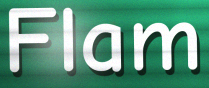
Flam